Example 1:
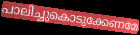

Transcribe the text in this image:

പാലിച്ചുകൊടുക്കേണമേ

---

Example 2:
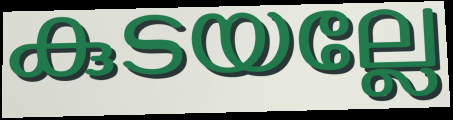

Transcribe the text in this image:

കുടയല്ലേ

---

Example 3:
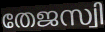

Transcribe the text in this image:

തേജസ്വി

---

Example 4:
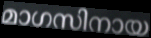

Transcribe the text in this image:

മാഗസിനായ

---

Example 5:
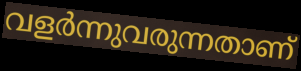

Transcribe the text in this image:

വളർന്നുവരുന്നതാണ്